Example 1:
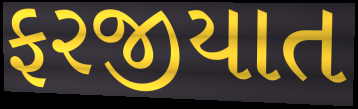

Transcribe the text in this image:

ફરજીયાત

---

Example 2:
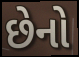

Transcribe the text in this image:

છેનો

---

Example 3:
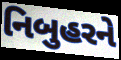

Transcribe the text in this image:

નિબુહરને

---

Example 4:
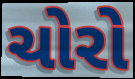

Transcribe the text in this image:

ચોરો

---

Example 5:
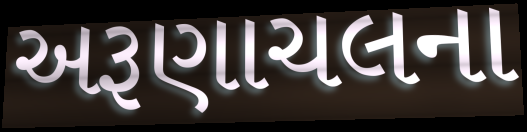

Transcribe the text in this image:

અરૂણાચલના